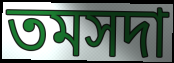
তমসদা